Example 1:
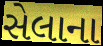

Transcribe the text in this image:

સેલાના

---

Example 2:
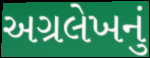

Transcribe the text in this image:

અગ્રલેખનું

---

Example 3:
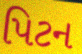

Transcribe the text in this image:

પિટન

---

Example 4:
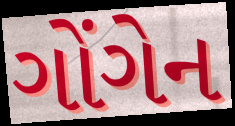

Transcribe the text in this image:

ગોંગેન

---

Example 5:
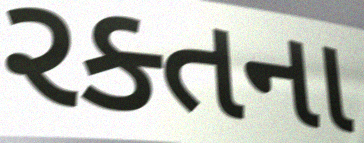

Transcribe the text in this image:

રક્તના